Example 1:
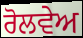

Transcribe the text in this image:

ਰੋਲਵੇਅ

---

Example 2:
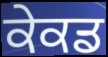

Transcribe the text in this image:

ਕੇਕਡ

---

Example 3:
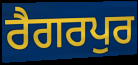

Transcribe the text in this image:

ਰੈਗਰਪੁਰ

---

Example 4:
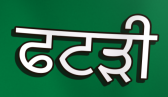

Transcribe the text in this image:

ਫਟੜੀ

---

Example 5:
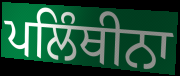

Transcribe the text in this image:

ਪਲਿੰਥੀਨਾ